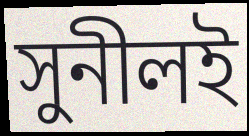
সুনীলই